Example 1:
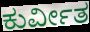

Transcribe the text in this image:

ಕುರ್ವೀತ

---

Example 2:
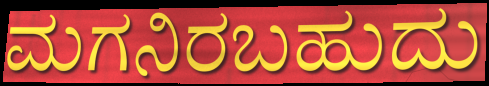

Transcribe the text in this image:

ಮಗನಿರಬಹುದು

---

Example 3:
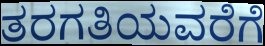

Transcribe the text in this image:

ತರಗತಿಯವರೆಗೆ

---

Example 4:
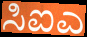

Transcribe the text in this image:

ಸಿಐಎ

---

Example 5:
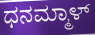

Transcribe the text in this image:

ಧನಮ್ಮಾಳ್